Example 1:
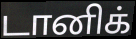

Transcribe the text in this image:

டானிக்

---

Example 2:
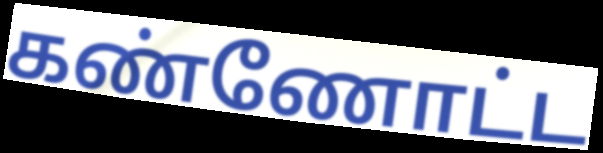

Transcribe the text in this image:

கண்ணோட்ட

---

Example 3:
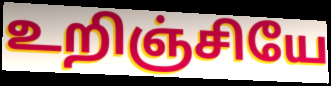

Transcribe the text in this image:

உறிஞ்சியே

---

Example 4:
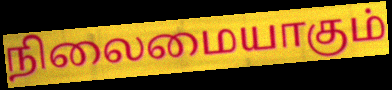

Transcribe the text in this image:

நிலைமையாகும்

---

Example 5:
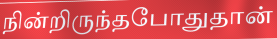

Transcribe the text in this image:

நின்றிருந்தபோதுதான்